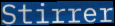
Stirrer